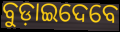
ବୁଡ଼ାଇଦେବେ